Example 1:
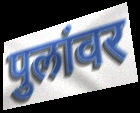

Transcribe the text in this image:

पुलांवर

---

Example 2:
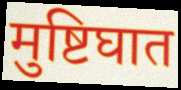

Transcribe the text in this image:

मुष्टिघात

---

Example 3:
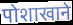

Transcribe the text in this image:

पोशाखाने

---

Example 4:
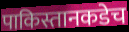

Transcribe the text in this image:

पाकिस्तानकडेच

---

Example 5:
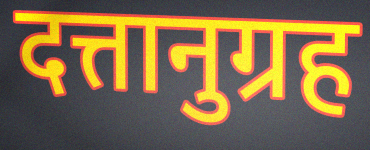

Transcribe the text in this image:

दत्तानुग्रह